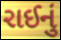
રાઈનું